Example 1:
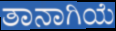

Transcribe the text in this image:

ತಾನಾಗಿಯೆ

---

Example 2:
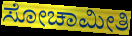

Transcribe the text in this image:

ಸೋಚಾಮೀತಿ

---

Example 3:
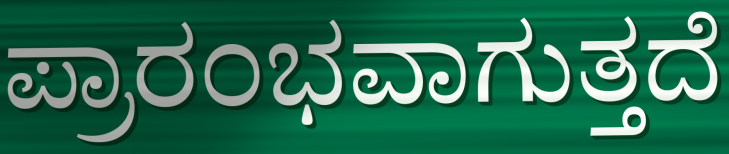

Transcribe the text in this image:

ಪ್ರಾರಂಭವಾಗುತ್ತದೆ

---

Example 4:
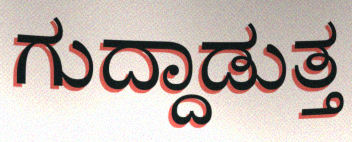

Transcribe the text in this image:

ಗುದ್ದಾಡುತ್ತ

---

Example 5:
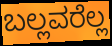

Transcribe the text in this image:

ಬಲ್ಲವರೆಲ್ಲ